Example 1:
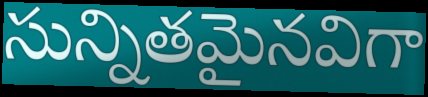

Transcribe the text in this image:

సున్నితమైనవిగా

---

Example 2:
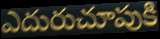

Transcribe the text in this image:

ఎదురుచూపుకి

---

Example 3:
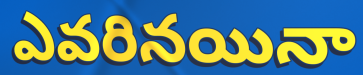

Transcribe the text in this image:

ఎవరినయినా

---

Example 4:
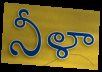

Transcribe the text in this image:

నీళా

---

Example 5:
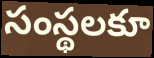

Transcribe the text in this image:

సంస్థలకూ